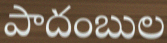
పాదంబుల